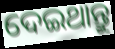
ଦେଇଥାନ୍ତୁ